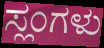
ಸ್ಲಂಗಳು